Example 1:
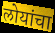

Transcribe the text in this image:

लोयांचा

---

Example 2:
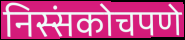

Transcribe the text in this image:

निस्संकोचपणे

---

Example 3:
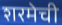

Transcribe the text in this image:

शरमेची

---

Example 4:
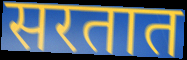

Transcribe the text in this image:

सरतात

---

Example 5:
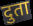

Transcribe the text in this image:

दुता